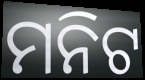
ମନିଟ